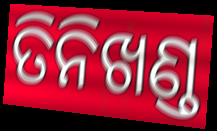
ତିନିଖଣ୍ଡ